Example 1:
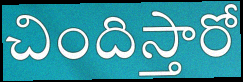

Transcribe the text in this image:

చిందిస్తారో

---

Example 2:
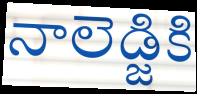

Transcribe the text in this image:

నాలెడ్జికి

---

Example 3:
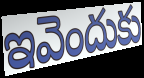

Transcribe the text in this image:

ఇవెందుకు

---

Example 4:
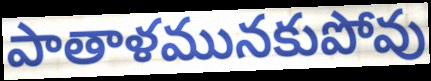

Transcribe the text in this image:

పాతాళమునకుపోవు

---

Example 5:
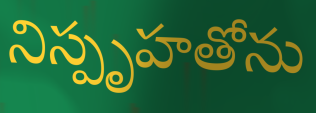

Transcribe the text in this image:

నిస్పృహతోను